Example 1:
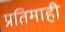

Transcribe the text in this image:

प्रतिमाही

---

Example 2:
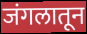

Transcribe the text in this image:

जंगलातून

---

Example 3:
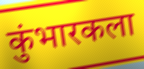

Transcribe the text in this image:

कुंभारकला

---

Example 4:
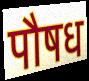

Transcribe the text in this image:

पौषध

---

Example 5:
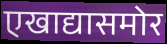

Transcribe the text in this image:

एखाद्यासमोर